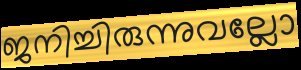
ജനിച്ചിരുന്നുവല്ലോ